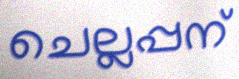
ചെല്ലപ്പന്